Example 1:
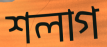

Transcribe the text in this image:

শলাগ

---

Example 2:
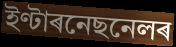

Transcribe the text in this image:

ইণ্টাৰনেছনেলৰ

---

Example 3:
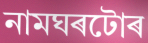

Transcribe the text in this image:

নামঘৰটোৰ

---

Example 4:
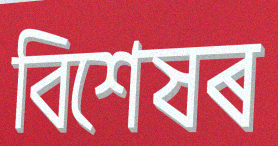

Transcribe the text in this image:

বিশেষৰ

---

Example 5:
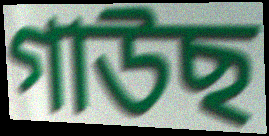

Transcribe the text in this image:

গাউছ